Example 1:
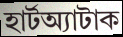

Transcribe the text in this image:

হার্টঅ্যাটাক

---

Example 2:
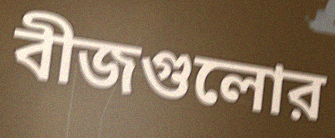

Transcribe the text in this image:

বীজগুলোর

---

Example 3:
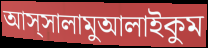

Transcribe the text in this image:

আস্সালামুআলাইকুম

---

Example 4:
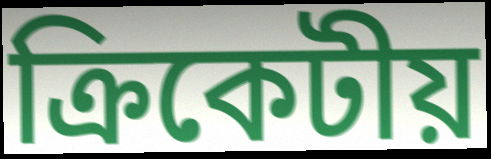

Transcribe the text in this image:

ক্রিকেটীয়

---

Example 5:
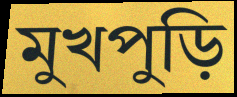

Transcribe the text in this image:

মুখপুড়ি